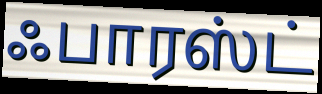
ஃபாரஸ்ட்